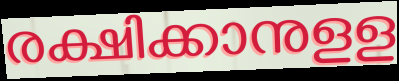
രക്ഷിക്കാനുളള